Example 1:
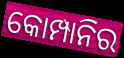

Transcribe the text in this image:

କୋମ୍ପାନିର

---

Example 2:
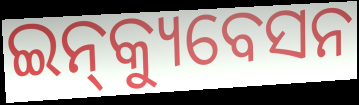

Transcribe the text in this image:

ଇନ୍‌କ୍ୟୁବେସନ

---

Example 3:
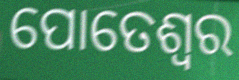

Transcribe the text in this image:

ପୋତେଶ୍ବର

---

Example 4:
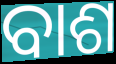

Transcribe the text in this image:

ବାଶ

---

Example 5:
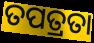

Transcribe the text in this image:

ତପତ୍ରତା